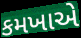
કમખાએ